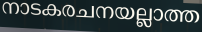
നാടകരചനയല്ലാത്ത